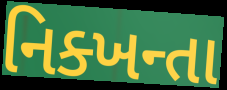
નિક્ખન્તા